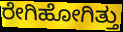
ರೇಗಿಹೋಗಿತ್ತು